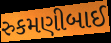
રુકમણીબાઈ